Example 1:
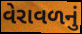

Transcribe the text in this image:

વેરાવળનું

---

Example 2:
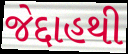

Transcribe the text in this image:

જેદ્દાહથી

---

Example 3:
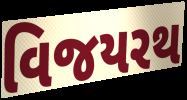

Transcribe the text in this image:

વિજયરથ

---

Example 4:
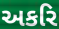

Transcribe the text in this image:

અકરિ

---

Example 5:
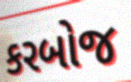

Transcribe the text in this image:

કરબોજ